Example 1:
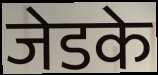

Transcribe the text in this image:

जेडके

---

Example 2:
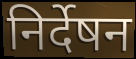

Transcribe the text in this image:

निर्देषन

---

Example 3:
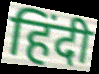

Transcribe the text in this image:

हिंदी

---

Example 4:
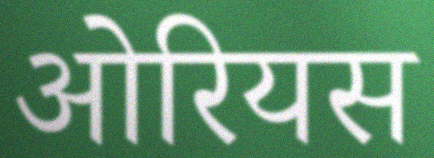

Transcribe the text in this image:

ओरियस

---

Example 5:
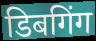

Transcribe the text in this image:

डिबगिंग